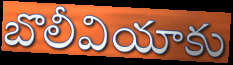
బొలీవియాకు